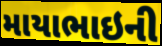
માયાભાઇની